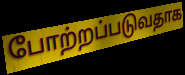
போற்றப்படுவதாக